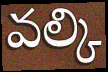
వల్కి